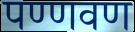
पण्णवण